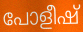
പോളീഷ്